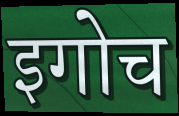
इगोच